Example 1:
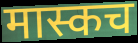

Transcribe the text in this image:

मास्कच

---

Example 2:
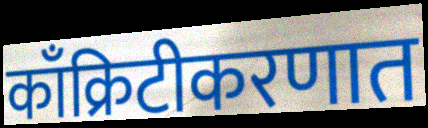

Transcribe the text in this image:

काँक्रिटीकरणात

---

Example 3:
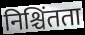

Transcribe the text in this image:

निश्चिंतता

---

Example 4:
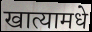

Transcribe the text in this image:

खात्यामधे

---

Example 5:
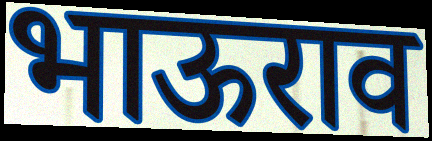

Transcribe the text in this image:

भाऊराव